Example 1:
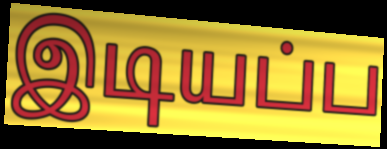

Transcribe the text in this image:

இடியப்ப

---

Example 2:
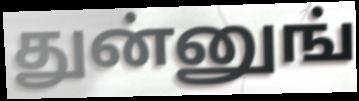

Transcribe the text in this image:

துன்னுங்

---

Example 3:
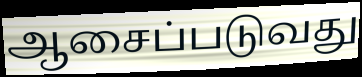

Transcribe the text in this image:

ஆசைப்படுவது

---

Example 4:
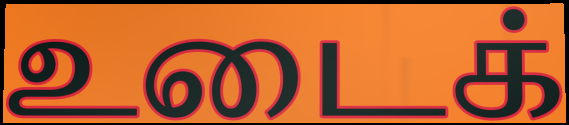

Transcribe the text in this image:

உடைக்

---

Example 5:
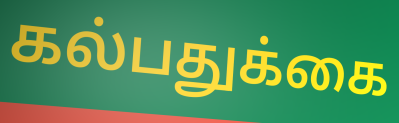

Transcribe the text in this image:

கல்பதுக்கை